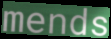
mends